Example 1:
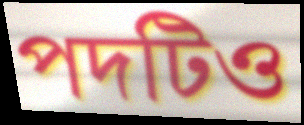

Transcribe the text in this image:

পদটিও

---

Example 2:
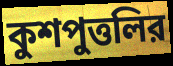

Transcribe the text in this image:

কুশপুত্তলির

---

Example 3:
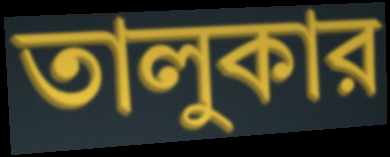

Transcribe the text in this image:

তালুকার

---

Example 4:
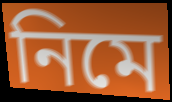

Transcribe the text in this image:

নিমে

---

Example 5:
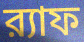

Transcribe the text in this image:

র‍্যাফ